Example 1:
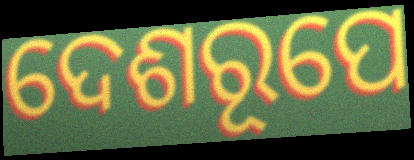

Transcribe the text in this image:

ଦେଶରୂପେ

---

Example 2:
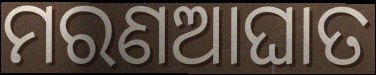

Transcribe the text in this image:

ମରଣଆଘାତ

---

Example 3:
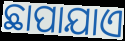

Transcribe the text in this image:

ଛାପାଯାଏ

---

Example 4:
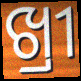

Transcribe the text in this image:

ଖ୍ରୀ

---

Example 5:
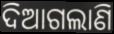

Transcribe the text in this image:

ଦିଆଗଲାଣି